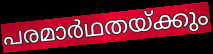
പരമാർഥതയ്ക്കും